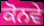
ਕੋਨਵੇ